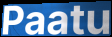
Paatu